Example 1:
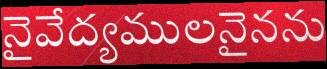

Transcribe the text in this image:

నైవేద్యములనైనను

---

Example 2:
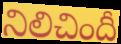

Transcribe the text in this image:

నిలిచిందీ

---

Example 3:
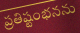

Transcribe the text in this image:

ప్రతిష్టంభనను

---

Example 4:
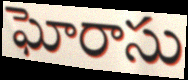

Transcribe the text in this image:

ఘోరాసు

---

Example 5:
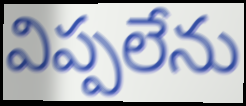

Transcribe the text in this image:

విప్పలేను